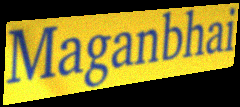
Maganbhai